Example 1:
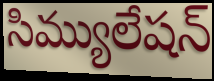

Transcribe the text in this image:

సిమ్యులేషన్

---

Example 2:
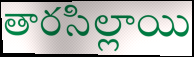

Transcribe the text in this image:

తారసిల్లాయి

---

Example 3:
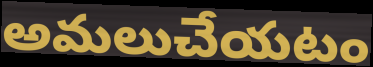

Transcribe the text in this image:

అమలుచేయటం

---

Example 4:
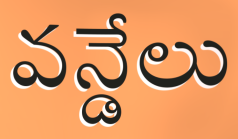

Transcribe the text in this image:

వన్డేలు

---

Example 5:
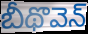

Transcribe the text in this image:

బీథొవెన్